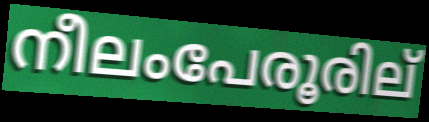
നീലംപേരൂരില്